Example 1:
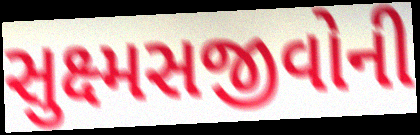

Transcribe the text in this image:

સુક્ષ્મસજીવોની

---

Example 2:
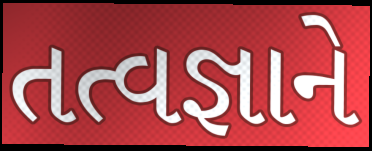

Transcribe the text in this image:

તત્વજ્ઞાને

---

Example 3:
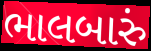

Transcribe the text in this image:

ભાલબારું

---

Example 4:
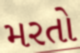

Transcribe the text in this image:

મરતો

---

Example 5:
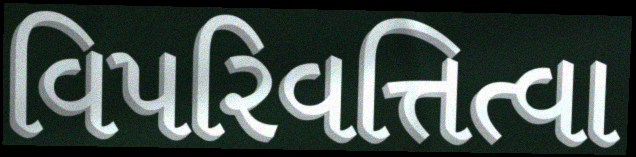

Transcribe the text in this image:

વિપરિવત્તિત્વા